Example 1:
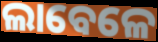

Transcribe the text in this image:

ଲାବେଳେ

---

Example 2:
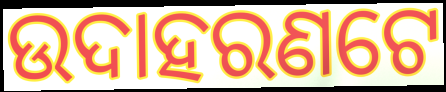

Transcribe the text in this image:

ଉଦାହରଣଟେ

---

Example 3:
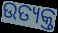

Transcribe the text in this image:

ଉତ୍ୟକ୍ତ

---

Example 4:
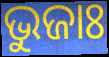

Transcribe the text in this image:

ଭୁଜାଃ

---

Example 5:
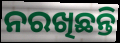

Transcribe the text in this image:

ନରଖିଛନ୍ତି